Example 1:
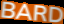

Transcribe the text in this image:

BARD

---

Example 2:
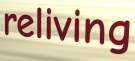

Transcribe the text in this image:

reliving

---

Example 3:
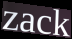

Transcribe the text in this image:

zack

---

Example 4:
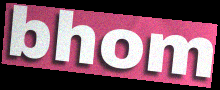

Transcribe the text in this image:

bhom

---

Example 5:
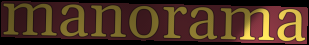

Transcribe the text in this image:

manorama